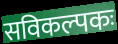
सविकल्पकः